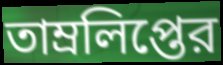
তাম্রলিপ্তের